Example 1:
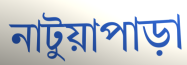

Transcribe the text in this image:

নাটুয়াপাড়া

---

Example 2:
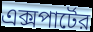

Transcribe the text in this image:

এক্সপার্টের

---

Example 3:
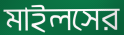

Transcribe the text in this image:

মাইলসের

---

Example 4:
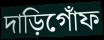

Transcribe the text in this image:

দাড়িগোঁফ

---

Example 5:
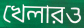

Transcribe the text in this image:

খেলারও